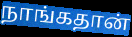
நாங்கதான்